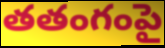
తతంగంపై